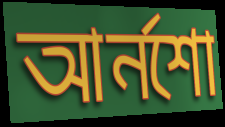
আর্নশো